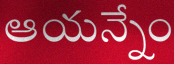
ఆయన్నేం